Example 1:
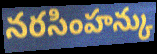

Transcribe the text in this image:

నరసింహన్కు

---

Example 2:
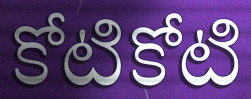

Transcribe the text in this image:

కోటికోటి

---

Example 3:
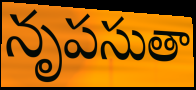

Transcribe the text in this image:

నృపసుతా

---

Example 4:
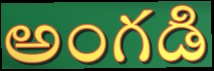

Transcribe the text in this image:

అంగడి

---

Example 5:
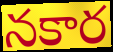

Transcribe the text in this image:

నకార